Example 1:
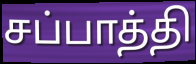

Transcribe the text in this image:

சப்பாத்தி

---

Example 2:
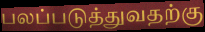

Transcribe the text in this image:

பலப்படுத்துவதற்கு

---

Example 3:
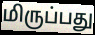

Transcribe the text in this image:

மிருப்பது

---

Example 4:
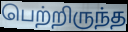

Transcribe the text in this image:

பெற்றிருந்த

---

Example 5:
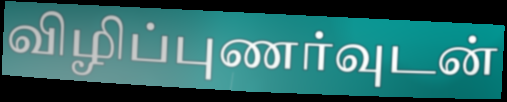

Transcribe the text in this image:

விழிப்புணர்வுடன்